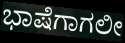
ಭಾಷೆಗಾಗಲೀ